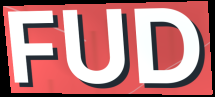
FUD